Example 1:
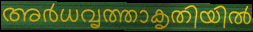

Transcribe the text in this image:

അർധവൃത്താകൃതിയിൽ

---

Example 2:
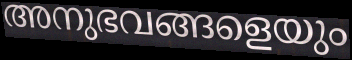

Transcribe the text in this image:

അനുഭവങ്ങളെയും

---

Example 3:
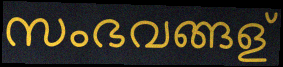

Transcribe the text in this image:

സംഭവങ്ങള്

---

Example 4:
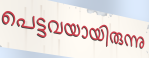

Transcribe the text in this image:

പെട്ടവയായിരുന്നു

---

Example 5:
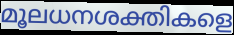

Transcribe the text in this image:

മൂലധനശക്തികളെ